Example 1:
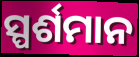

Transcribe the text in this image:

ସ୍ପର୍ଶମାନ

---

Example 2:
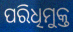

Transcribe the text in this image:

ପରିଧିମୁକ୍ତ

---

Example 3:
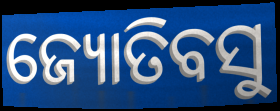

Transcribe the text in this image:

ଜ୍ୟୋତିବସୁ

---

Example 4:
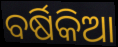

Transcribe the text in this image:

ବର୍ଷିକିଆ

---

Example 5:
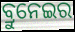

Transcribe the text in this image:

ବ୍ରୁନେଇର